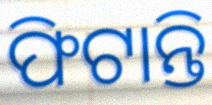
ଫିଟାନ୍ତି